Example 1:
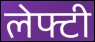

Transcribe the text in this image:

लेफ्टी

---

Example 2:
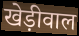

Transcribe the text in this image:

खेड़ीवाल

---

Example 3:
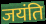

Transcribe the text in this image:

जयंति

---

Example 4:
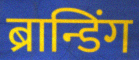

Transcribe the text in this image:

ब्रान्डिंग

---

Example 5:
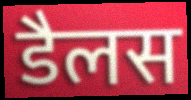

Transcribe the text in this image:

डैलस